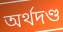
অর্থদণ্ড